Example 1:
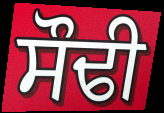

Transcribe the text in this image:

ਸੌਢੀ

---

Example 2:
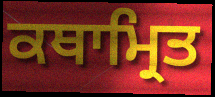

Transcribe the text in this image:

ਕਥਾਮ੍ਰਿਤ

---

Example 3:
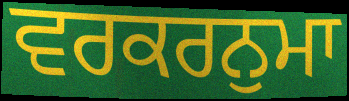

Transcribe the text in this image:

ਵਰਕਰਨੁਮਾ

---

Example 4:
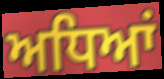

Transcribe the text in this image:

ਅਧਿਆਂ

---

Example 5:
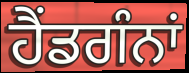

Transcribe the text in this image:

ਹੈਂਡਗੰਨਾਂ